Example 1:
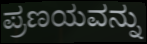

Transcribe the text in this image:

ಪ್ರಣಯವನ್ನು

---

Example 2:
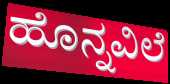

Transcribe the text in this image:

ಹೊನ್ನವಿಲೆ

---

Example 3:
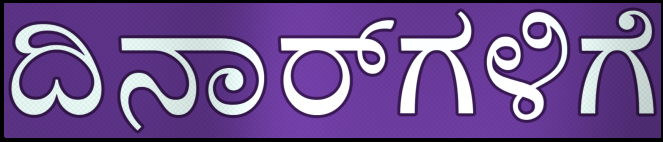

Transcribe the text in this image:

ದಿನಾರ್‌ಗಳಿಗೆ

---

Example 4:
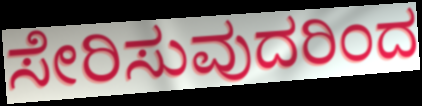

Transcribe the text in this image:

ಸೇರಿಸುವುದರಿಂದ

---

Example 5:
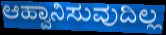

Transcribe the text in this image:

ಆಹ್ವಾನಿಸುವುದಿಲ್ಲ